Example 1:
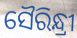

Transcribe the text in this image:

ସୈରିନ୍ଧ୍ରୀ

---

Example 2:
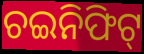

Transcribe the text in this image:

ଚଇନିଫିଟ୍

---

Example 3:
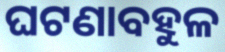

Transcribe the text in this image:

ଘଟଣାବହୁଳ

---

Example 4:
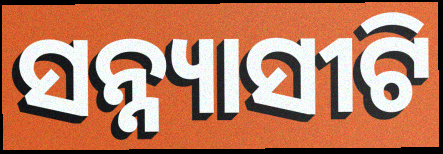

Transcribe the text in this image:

ସନ୍ନ୍ୟାସୀଟି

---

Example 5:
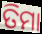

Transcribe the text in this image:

ତିମା